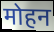
मोहन